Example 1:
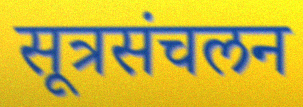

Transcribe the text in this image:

सूत्रसंचलन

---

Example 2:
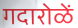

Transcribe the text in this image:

गदारोळें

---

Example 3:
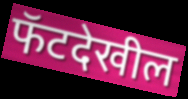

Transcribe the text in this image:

फॅटदेखील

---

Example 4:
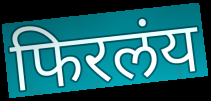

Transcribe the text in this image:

फिरलंय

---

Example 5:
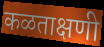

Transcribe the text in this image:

कळताक्षणी